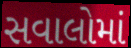
સવાલોમાં